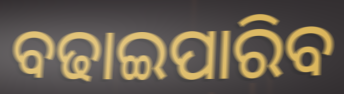
ବଢାଇପାରିବ